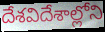
దేశవిదేశాల్లోని